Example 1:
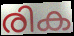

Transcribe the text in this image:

രിക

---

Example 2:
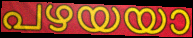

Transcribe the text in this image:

പഴയയാ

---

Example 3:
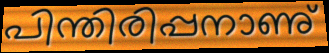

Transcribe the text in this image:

പിന്തിരിപ്പനാണു്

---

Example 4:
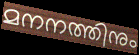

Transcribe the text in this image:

മനനത്തിനും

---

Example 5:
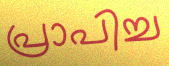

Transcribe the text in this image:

പ്രാപിച്ച